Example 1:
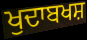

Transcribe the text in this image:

ਖੁਦਾਬਖਸ਼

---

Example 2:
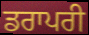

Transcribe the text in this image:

ਡਰਾਪਰੀ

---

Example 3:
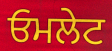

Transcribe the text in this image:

ਓਮਲੇਟ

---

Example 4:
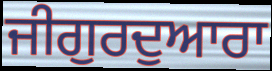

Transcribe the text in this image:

ਜੀਗੁਰਦੁਆਰਾ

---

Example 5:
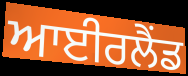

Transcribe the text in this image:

ਆਈਰਲੈਂਡ